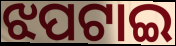
ଝପଟାଇ